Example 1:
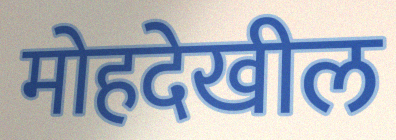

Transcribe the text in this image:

मोहदेखील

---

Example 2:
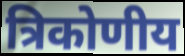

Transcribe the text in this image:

त्रिकोणीय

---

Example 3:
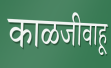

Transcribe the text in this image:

काळजीवाहू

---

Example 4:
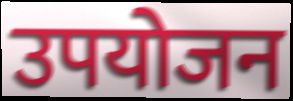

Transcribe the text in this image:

उपयोजन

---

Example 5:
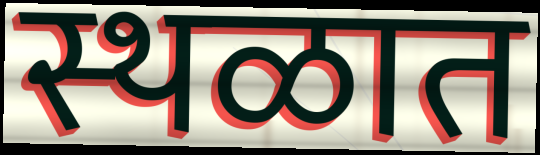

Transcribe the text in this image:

स्थळात